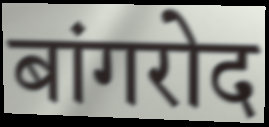
बांगरोद